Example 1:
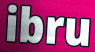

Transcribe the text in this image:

ibru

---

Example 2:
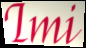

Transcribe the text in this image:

Imi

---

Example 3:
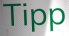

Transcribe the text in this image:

Tipp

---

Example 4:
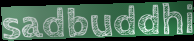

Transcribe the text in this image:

sadbuddhi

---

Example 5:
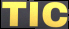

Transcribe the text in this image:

TIC